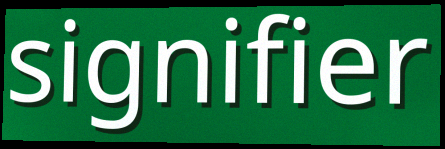
signifier